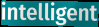
intelligent